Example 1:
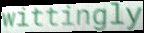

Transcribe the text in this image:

wittingly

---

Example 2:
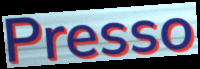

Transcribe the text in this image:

Presso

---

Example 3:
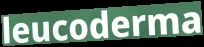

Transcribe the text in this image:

leucoderma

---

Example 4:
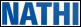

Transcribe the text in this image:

NATHI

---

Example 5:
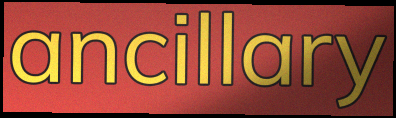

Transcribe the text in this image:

ancillary